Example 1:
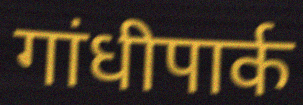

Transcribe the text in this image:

गांधीपार्क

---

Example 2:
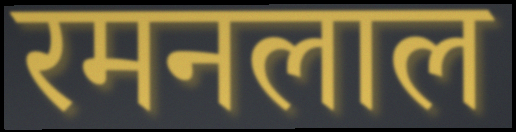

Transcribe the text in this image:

रमनलाल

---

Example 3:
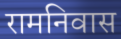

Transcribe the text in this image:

रामनिवास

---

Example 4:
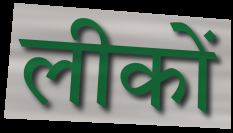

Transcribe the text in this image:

लीकों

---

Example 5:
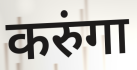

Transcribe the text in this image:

करुंगा